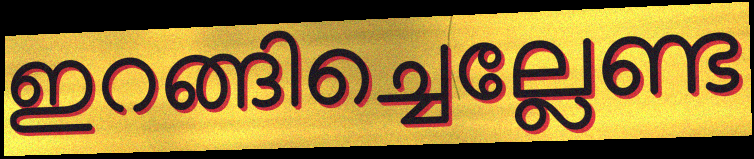
ഇറങ്ങിച്ചെല്ലേണ്ട